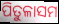
ପିତୁଳାସମ